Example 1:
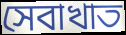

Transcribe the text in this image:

সেবাখাত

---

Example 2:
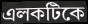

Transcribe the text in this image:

এলকটিকে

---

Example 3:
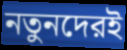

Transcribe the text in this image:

নতুনদেরই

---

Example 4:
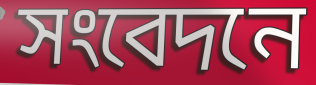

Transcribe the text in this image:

সংবেদনে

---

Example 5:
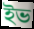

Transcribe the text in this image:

ইভ